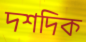
দশদিক